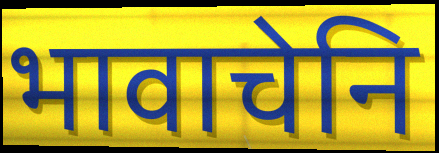
भावाचेनि